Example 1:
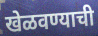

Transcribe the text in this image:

खेळवण्याची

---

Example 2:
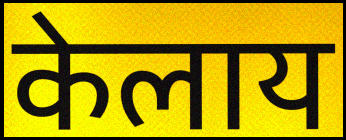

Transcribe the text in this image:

केलाय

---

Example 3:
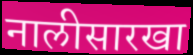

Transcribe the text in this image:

नालीसारखा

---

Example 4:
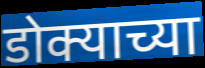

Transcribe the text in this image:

डोक्याच्या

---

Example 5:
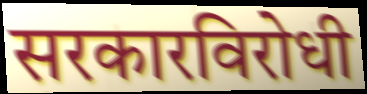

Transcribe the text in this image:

सरकारविरोधी